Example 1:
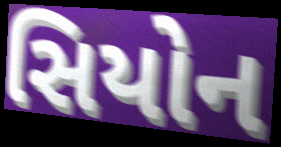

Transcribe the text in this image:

સિયોન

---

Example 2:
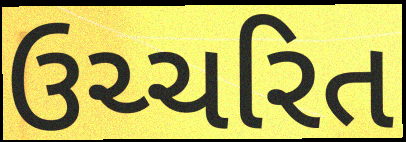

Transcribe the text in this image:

ઉચ્ચરિત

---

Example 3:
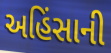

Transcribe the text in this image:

અહિંસાની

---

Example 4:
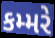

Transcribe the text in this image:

કમ્મરે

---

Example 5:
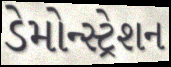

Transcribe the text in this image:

ડેમોન્સ્ટ્રેશન